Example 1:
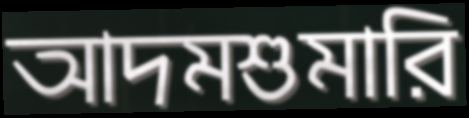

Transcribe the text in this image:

আদমশুমারি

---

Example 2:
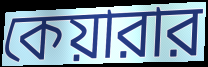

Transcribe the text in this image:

কেয়ারার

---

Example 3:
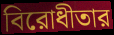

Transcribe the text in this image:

বিরোধীতার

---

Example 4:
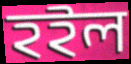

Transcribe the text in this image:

হইল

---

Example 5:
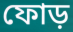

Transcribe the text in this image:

ফোড়